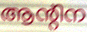
ആന്റിന